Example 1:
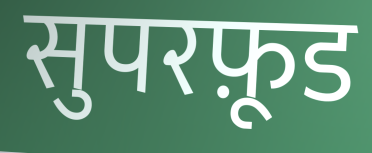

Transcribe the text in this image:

सुपरफ़ूड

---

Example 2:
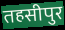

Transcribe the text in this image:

तहसीपुर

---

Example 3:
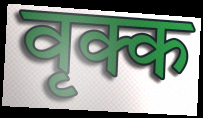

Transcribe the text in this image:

वृक्क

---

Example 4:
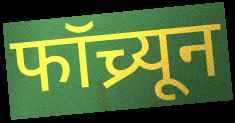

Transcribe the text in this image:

फॉच्र्यून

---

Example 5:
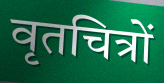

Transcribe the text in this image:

वृतचित्रों